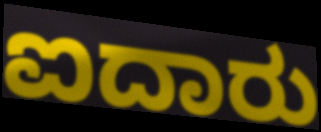
ಐದಾರು